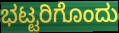
ಭಟ್ಟರಿಗೊಂದು